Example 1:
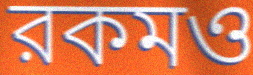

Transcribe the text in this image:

রকমও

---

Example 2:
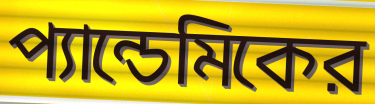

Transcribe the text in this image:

প্যান্ডেমিকের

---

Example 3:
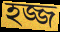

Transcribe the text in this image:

হজ্জ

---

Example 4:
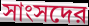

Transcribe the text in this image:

সাংসদের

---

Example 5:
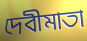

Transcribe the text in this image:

দেবীমাতা